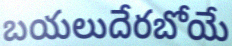
బయలుదేరబోయే